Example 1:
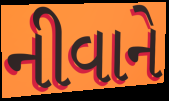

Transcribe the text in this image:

નીવાને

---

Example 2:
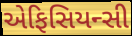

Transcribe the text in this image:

એફિસિયન્સી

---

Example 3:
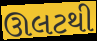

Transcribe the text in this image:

ઊલટથી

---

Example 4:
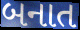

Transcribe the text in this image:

બનાત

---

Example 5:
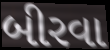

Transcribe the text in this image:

બીરવા